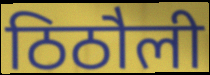
ठिठौली